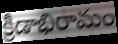
క్రీడాభిరామం